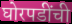
घोरपडींची